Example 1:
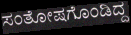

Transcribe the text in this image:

ಸಂತೋಷಗೊಂಡಿದ್ದ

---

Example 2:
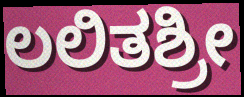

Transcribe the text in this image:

ಲಲಿತಶ್ರೀ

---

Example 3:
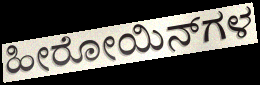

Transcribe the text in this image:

ಹೀರೋಯಿನ್‌ಗಳ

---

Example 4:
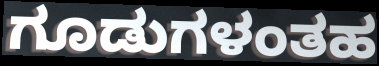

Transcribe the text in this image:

ಗೂಡುಗಳಂತಹ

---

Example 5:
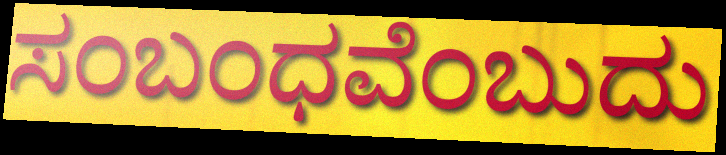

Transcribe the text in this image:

ಸಂಬಂಧವೆಂಬುದು